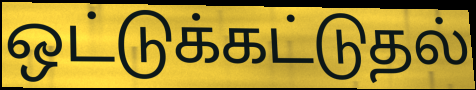
ஒட்டுக்கட்டுதல்